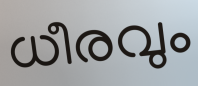
ധീരവും